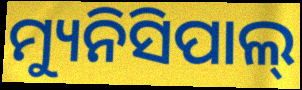
ମ୍ୟୁନିସିପାଲ୍